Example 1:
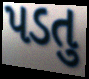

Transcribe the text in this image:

પડતુ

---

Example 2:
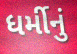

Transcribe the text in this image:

ધર્મીનું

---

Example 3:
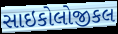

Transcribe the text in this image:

સાઇકોલોજીકલ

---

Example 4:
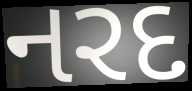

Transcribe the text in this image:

નરદ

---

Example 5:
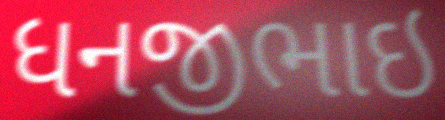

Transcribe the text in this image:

ધનજીભાઇ